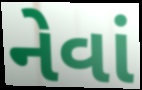
નેવાં